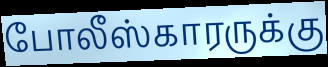
போலீஸ்காரருக்கு